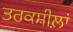
ਤਰਕਸ਼ੀਲ਼ਾਂ